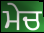
ਮੇਚ